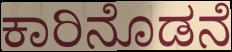
ಕಾರಿನೊಡನೆ